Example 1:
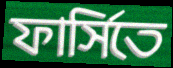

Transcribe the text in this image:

ফার্সিতে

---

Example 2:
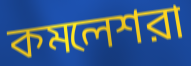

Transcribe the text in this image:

কমলেশরা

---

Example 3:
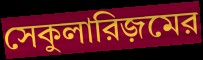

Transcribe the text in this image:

সেকুলারিজ়মের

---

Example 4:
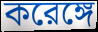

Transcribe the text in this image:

করেঙ্গে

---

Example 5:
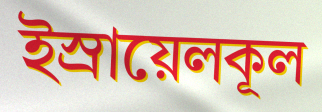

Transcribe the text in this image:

ইস্রায়েলকূল